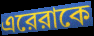
এরেরাকে